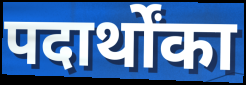
पदार्थोंका